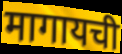
मागायची